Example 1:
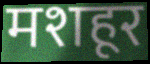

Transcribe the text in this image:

मशहूर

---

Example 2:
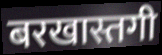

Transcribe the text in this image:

बरखास्तगी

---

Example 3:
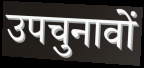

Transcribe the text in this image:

उपचुनावों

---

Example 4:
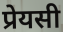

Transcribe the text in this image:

प्रेयसी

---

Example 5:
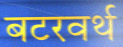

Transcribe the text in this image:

बटरवर्थ